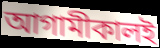
আগামীকালই